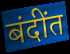
बंदींत